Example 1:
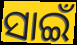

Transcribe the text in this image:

ସାଇଁ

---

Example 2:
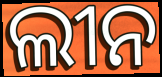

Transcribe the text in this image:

ଲୀନ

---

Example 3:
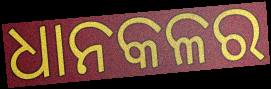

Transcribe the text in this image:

ଧାନକଳର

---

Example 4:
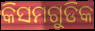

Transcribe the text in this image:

କିସମଗୁଡିକ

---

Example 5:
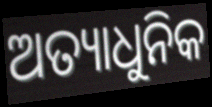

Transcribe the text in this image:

ଅତ୍ୟାଧୁନିକ